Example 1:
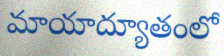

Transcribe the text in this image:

మాయాద్యూతంలో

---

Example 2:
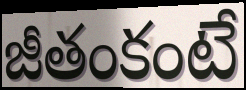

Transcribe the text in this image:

జీతంకంటే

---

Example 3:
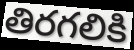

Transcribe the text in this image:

తిరగలికి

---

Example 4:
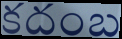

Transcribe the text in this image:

కదంబ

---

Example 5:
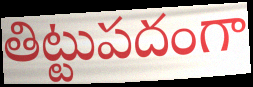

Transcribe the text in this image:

తిట్టుపదంగా